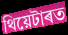
থিয়েটাৰত